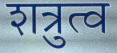
शत्रुत्व